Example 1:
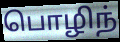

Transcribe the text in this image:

பொழிந்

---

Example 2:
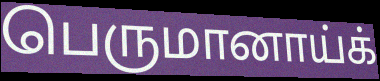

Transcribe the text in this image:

பெருமானாய்க்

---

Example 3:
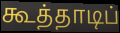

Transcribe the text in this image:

கூத்தாடிப்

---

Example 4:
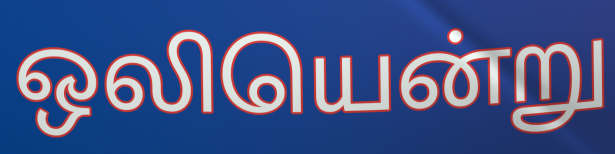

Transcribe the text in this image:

ஒலியென்று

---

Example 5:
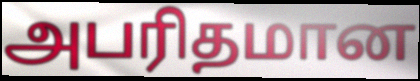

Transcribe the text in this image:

அபரிதமான